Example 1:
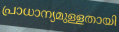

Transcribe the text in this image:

പ്രാധാന്യമുള്ളതായി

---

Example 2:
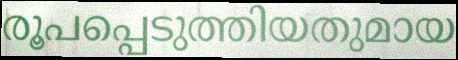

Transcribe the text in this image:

രൂപപ്പെടുത്തിയതുമായ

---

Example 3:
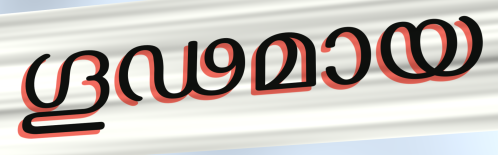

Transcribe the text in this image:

ഗൂഢമായ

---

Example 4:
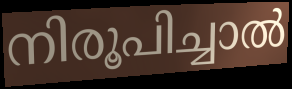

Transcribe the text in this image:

നിരൂപിച്ചാൽ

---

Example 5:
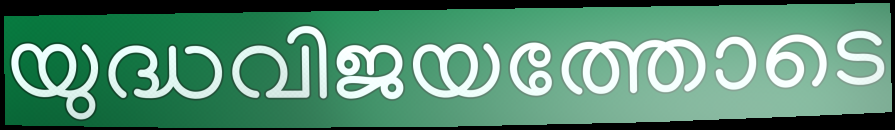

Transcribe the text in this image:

യുദ്ധവിജയത്തോടെ